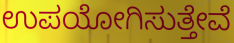
ಉಪಯೋಗಿಸುತ್ತೇವೆ